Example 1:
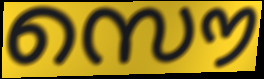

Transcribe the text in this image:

സൌ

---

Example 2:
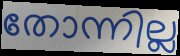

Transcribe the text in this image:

തോന്നില്ല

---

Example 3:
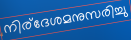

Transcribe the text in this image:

നിര്ദേശമനുസരിച്ചു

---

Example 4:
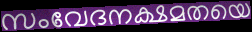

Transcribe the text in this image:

സംവേദനക്ഷമതയെ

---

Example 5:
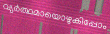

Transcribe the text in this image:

വ്യർത്ഥമായൊഴുകിപ്പോം